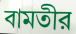
বামতীর